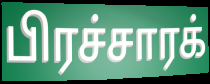
பிரச்சாரக்